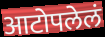
आटोपलेलं